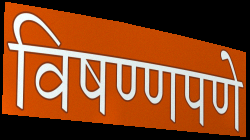
विषण्णपणे